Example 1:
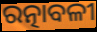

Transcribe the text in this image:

ରତ୍ନାବଳୀ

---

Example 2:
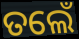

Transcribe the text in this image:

ତଲେଁ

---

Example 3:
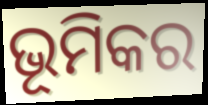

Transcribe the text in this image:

ଭୂମିକର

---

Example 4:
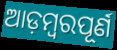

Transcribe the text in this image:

ଆଡ଼ମ୍ବରପୂର୍ଣ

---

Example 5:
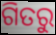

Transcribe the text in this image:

ଗିତରୁ